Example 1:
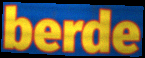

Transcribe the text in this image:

berde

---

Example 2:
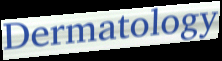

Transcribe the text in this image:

Dermatology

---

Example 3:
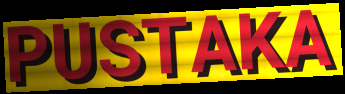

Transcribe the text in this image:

PUSTAKA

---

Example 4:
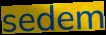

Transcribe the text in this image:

sedem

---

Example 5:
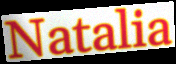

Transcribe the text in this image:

Natalia